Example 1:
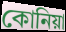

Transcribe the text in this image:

কোনিয়া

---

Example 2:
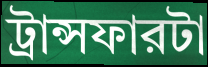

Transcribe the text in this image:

ট্রান্সফারটা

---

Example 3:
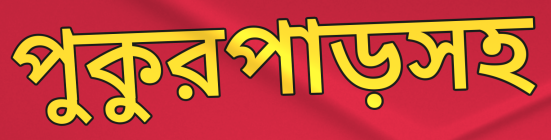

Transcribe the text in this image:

পুকুরপাড়সহ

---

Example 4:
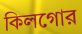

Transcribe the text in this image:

কিলগোর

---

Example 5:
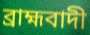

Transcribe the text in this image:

ব্রাহ্মবাদী